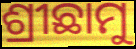
ଶ୍ରୀଛାମୁ